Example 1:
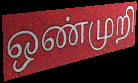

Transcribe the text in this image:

ஒண்முறி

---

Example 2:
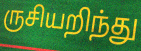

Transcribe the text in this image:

ருசியறிந்து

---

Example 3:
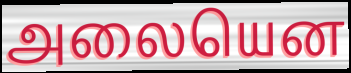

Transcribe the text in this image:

அலையென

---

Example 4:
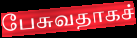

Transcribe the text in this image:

பேசுவதாகச்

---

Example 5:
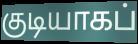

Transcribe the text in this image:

குடியாகப்